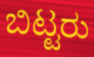
ಬಿಟ್ಟರು